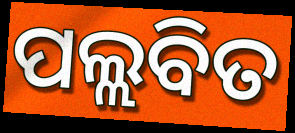
ପଲ୍ଲବିତ